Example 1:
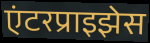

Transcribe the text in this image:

एंटरप्राइझेस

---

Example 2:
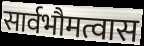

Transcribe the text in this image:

सार्वभौमत्वास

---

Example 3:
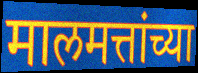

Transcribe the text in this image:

मालमत्तांच्या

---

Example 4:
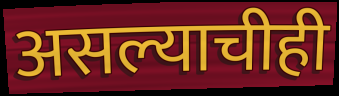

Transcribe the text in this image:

असल्याचीही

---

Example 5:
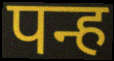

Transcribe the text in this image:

पन्ह